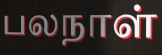
பலநாள்